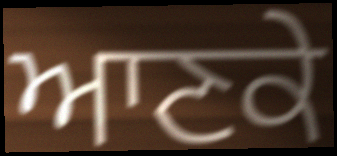
ਆਣਕੇ